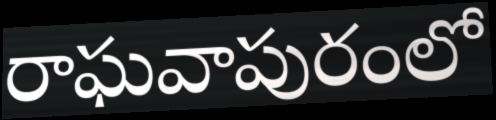
రాఘవాపురంలో